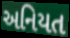
અનિયત